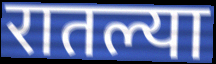
रातल्या